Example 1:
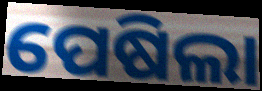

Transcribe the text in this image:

ପେଷିଲା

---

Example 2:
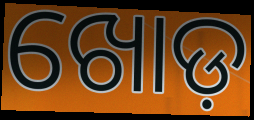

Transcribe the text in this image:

ଖୋଡ଼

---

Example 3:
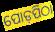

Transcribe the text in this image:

ପୋଡ଼ପିଠା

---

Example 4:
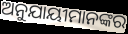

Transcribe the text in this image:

ଅନୁଯାୟୀମାନଙ୍କର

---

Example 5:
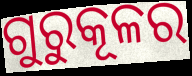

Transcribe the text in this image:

ଗୁରୁକୂଳର